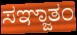
ಸಞ್ಜಾತಂ